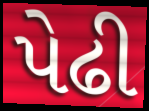
પેઢી